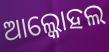
ଆଲ୍କୋହଲ